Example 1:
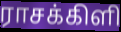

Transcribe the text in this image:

ராசக்கிளி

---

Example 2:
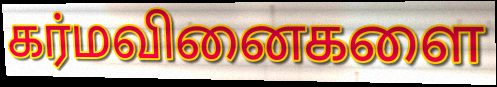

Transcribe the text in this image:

கர்மவினைகளை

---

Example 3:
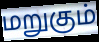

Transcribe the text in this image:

மறுகும்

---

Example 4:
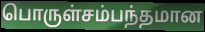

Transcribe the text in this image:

பொருள்சம்பந்தமான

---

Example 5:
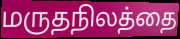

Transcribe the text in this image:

மருதநிலத்தை